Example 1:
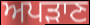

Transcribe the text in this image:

ਅਪੜਾਣ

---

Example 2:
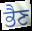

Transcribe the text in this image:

ਭੈਣ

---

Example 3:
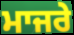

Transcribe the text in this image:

ਮਾਜਰੇ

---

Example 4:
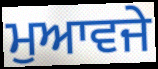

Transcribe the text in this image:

ਮੁਆਵਜੇ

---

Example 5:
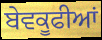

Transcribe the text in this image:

ਬੇਵਕੂਫੀਆਂ